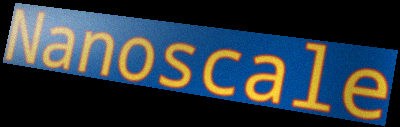
Nanoscale